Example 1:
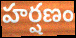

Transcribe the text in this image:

హర్షణం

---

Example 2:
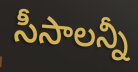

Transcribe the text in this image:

సీసాలన్నీ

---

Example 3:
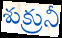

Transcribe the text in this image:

శుక్రునీ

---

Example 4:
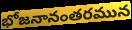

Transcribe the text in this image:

భోజనానంతరమున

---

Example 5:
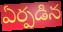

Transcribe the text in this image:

ఏర్పడిన